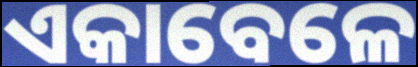
ଏକାବେଳେ